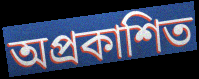
অপ্ৰকাশিত